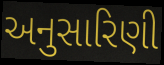
અનુસારિણી